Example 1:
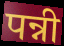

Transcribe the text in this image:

पन्नी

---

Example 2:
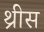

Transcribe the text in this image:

थ्रीस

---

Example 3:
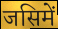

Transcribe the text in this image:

जसिमें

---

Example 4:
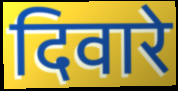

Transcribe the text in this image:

दिवारे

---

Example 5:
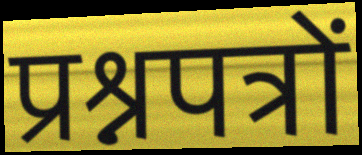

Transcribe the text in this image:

प्रश्नपत्रों